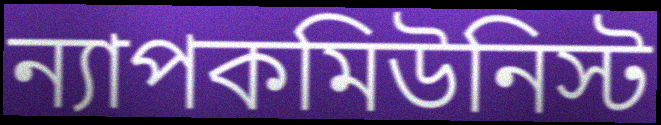
ন্যাপকমিউনিস্ট